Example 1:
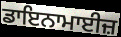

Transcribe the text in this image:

ਡਾਇਨਾਮਾਈਜ਼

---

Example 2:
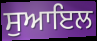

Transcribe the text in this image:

ਸੁਆਇਲ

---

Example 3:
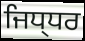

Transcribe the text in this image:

ਜਿਧ੍ਧਰ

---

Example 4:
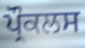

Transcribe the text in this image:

ਪ੍ਰੌਕਲਸ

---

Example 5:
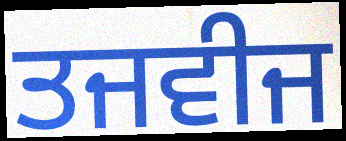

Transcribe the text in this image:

ਤਜਵੀਜ